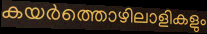
കയർത്തൊഴിലാളികളും